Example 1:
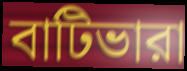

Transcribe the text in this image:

বাটিভারা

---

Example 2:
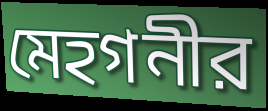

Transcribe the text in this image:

মেহগনীর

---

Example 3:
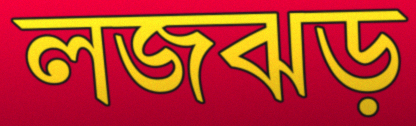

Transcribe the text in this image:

লজঝড়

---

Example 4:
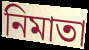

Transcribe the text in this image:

নিমাতা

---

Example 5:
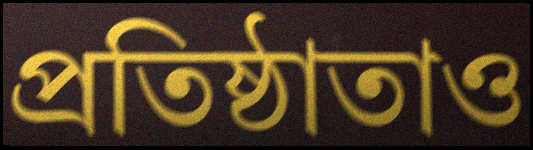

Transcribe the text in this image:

প্রতিষ্ঠাতাও